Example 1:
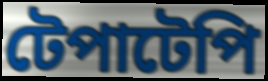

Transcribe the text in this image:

টেপাটেপি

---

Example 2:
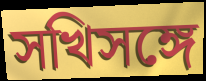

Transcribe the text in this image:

সখিসঙ্গে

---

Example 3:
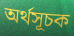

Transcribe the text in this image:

অর্থসূচক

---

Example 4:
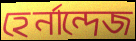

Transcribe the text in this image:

হের্নান্দেজ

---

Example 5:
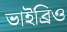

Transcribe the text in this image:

ভাইব্রিও